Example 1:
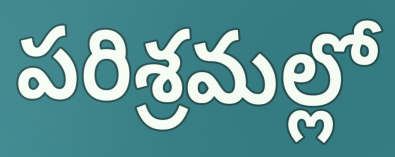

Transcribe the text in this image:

పరిశ్రమల్లో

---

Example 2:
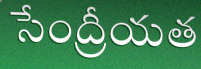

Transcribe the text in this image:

సేంద్రీయత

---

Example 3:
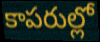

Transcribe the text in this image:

కాపరుల్లో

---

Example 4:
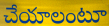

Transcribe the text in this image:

చేయాలంటూ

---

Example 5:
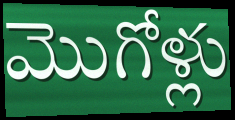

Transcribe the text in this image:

మొగోళ్లు